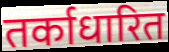
तर्काधारित